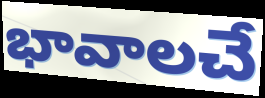
భావాలచే